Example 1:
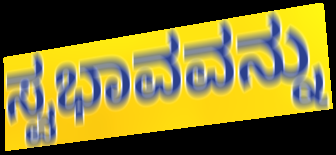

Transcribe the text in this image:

ಸ್ವಭಾವವನ್ನು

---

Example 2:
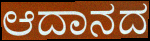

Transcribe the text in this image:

ಆದಾನದ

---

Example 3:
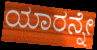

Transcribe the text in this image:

ಯಾರನ್ನೇ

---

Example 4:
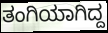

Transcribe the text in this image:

ತಂಗಿಯಾಗಿದ್ದ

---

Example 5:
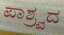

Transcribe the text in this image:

ಪಾಶ್ರ್ವದ